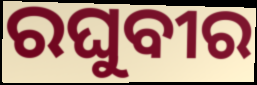
ରଘୁବୀର